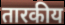
तारकीय